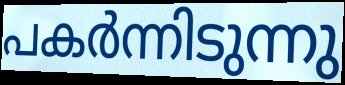
പകർന്നിടുന്നു